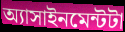
অ্যাসাইনমেন্টটা